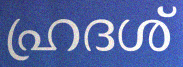
ഹ്രദശ്